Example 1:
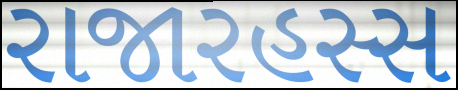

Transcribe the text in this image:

રાજારહસ્સ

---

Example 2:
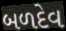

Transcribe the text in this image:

બળદેવ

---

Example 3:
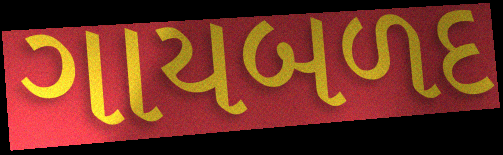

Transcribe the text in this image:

ગાયબળદ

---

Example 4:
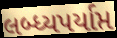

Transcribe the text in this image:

લબ્ધ્યપર્યાપ્ત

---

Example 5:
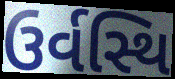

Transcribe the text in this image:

ઉર્વસ્થિ